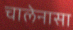
चालेनासा